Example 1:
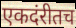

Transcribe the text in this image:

एकदंरीतच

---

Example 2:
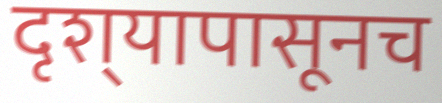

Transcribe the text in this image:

दृश्यापासूनच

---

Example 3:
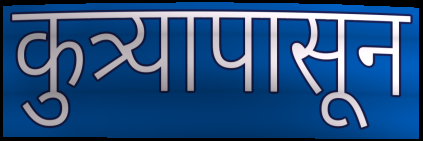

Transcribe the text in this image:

कुत्र्यापासून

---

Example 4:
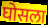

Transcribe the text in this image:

घोसला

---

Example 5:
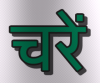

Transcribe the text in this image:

चरें